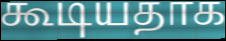
கூடியதாக